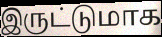
இருட்டுமாக